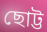
ছোট্ট